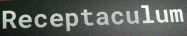
Receptaculum